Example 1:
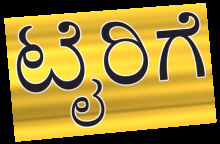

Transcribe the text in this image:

ಟೈರಿಗೆ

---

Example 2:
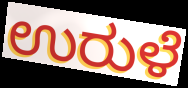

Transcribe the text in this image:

ಉರುಳೆ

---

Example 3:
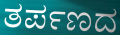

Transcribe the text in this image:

ತರ್ಪಣದ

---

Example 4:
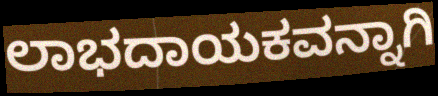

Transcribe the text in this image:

ಲಾಭದಾಯಕವನ್ನಾಗಿ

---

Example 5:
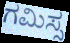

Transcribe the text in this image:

ಗಮಿಸ್ಸ